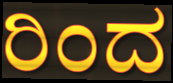
ರಿಂದ